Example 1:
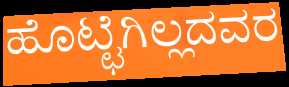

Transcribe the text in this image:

ಹೊಟ್ಟೆಗಿಲ್ಲದವರ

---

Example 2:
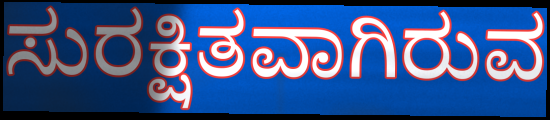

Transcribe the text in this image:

ಸುರಕ್ಷಿತವಾಗಿರುವ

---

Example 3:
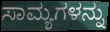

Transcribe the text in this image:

ಸಾಮ್ಯಗಳನ್ನು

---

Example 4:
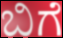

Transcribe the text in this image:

ಬಿಗೆ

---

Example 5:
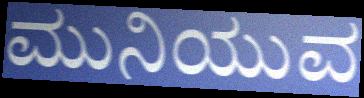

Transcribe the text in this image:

ಮುನಿಯುವ